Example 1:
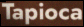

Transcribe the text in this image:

Tapioca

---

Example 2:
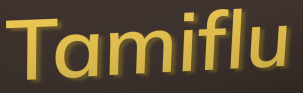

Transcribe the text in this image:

Tamiflu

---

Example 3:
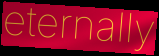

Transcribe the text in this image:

eternally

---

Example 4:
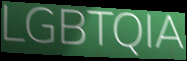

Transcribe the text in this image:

LGBTQIA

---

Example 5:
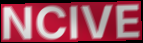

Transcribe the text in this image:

NCIVE